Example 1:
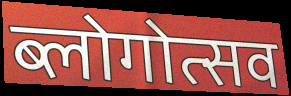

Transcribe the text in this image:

ब्लोगोत्सव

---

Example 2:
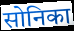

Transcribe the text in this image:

सोनिका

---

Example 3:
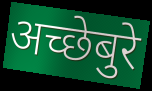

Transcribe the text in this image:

अच्छेबुरे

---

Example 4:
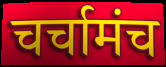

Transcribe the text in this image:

चर्चामंच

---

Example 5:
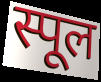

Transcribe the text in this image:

स्पूल